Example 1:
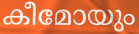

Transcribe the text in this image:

കീമോയും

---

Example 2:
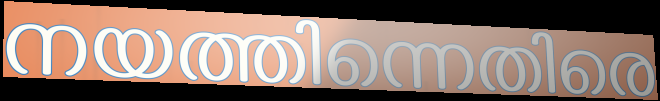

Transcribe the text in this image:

നയത്തിന്നെതിരെ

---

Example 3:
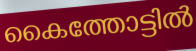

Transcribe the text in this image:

കൈത്തോട്ടിൽ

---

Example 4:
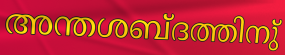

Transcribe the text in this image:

അന്തശബ്ദത്തിനു്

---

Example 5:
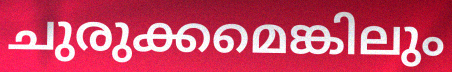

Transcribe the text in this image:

ചുരുക്കമെങ്കിലും